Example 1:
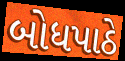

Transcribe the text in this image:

બોધપાઠે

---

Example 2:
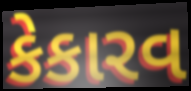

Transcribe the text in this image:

કેકારવ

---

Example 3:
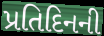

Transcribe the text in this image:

પ્રતિદિનની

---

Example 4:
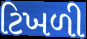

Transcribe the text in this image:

ટિખળી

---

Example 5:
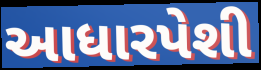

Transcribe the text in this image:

આધારપેશી